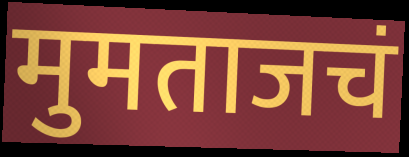
मुमताजचं